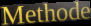
Methode